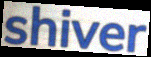
shiver